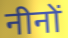
नीनों